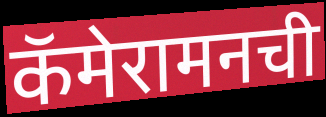
कॅमेरामनची